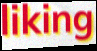
liking